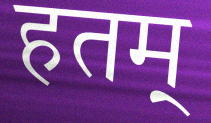
हतम्